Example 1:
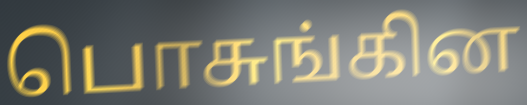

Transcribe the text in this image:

பொசுங்கின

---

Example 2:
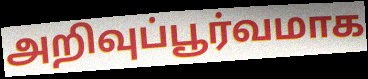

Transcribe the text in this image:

அறிவுப்பூர்வமாக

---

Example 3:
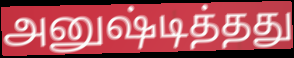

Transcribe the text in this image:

அனுஷ்டித்தது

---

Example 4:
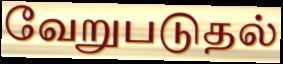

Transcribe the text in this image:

வேறுபடுதல்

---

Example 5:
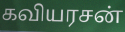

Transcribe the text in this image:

கவியரசன்